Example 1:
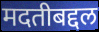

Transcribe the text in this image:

मदतीबद्दल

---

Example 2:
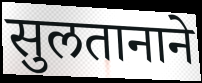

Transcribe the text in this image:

सुलतानाने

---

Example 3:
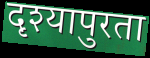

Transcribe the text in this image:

दृश्यापुरता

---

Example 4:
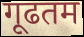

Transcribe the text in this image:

गूढतम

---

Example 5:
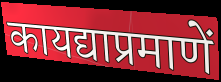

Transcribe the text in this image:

कायद्याप्रमाणें